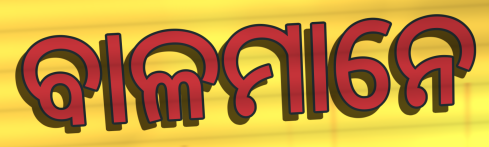
ବାଳମାନେ